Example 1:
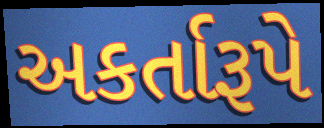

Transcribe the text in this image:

અકર્તારૂપે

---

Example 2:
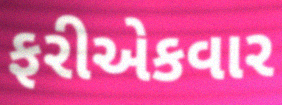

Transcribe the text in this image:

ફરીએકવાર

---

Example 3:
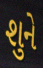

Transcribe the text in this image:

શુને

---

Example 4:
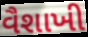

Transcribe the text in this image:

વૈશાખી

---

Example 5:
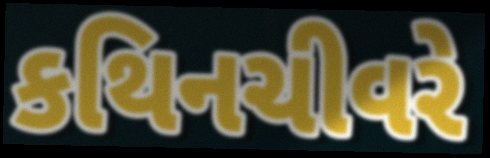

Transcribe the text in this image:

કથિનચીવરે